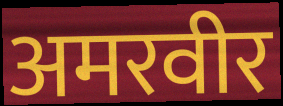
अमरवीर